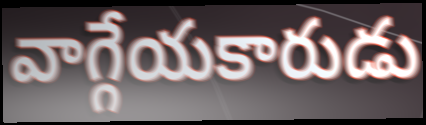
వాగ్గేయకారుడు